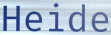
Heide